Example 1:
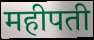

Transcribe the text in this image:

महीपती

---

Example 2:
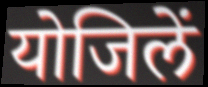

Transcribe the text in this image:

योजिलें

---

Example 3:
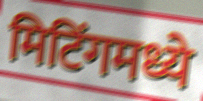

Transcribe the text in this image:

मिटिंगमध्ये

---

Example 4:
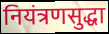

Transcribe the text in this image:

नियंत्रणसुद्धा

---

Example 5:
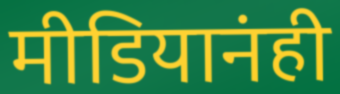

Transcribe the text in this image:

मीडियानंही